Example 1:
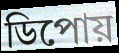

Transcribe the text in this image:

ডিপোয়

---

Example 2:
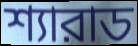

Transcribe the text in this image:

শ্যারাড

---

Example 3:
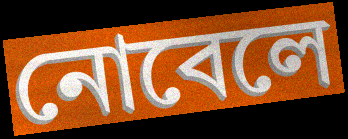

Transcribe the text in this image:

নোবেলে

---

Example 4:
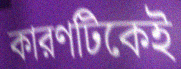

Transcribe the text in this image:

কারণটিকেই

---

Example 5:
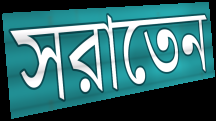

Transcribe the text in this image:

সরাতেন